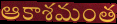
ఆకాశమంత